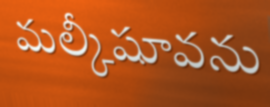
మల్కీషూవను